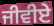
ਜੀਵੀਏ